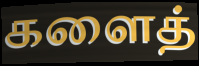
களைத்